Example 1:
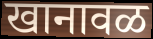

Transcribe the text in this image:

खानावळ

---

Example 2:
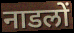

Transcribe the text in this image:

नाडलों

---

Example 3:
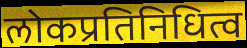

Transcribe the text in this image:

लोकप्रतिनिधित्व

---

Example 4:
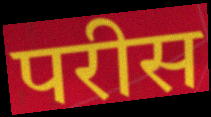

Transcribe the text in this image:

परीस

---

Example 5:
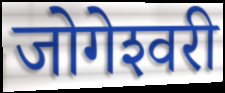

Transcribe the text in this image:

जोगेश्‍वरी